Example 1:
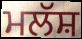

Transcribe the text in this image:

ਮਲੱਸ਼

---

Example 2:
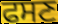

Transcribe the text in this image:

ਫਸਣ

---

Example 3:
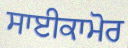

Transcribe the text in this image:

ਸਾਈਕਾਮੋਰ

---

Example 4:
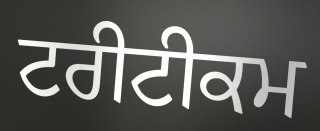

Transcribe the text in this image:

ਟਰੀਟੀਕਮ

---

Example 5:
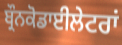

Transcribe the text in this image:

ਬ੍ਰੌਨਕੋਡਾਈਲੇਟਰਾਂ